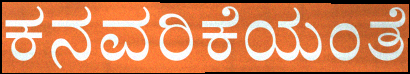
ಕನವರಿಕೆಯಂತೆ